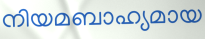
നിയമബാഹ്യമായ